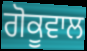
ਗੋਕੂਵਾਲ